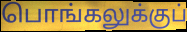
பொங்கலுக்குப்